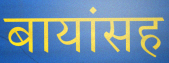
बायांसह